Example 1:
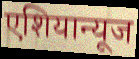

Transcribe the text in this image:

एशियान्यूज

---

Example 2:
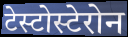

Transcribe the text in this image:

टेस्‍टोस्‍टेरोन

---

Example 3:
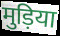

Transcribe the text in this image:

मुड़िया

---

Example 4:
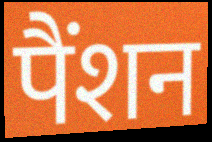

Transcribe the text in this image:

पैंशन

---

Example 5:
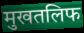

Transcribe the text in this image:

मुखतलिफ